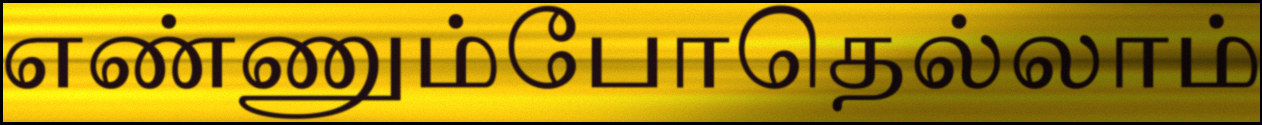
எண்ணும்போதெல்லாம்